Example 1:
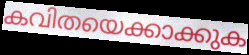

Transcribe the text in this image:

കവിതയെക്കാക്കുക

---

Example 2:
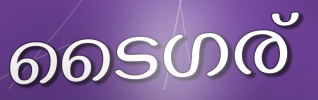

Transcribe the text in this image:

ടൈഗര്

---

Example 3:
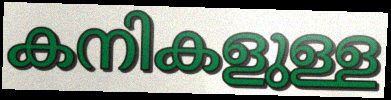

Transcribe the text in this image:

കനികളുള്ള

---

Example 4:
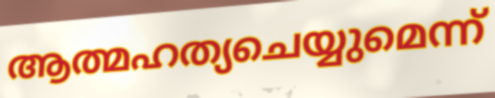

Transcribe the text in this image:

ആത്മഹത്യചെയ്യുമെന്ന്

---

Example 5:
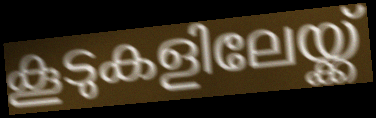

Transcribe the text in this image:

കൂടുകളിലേയ്ക്ക്